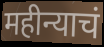
महीन्याचं